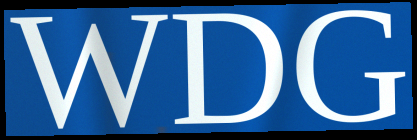
WDG